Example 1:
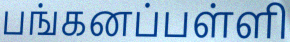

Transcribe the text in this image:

பங்கனப்பள்ளி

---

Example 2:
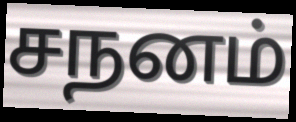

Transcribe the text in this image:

சநனம்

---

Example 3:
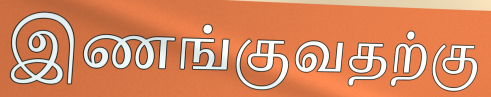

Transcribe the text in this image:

இணங்குவதற்கு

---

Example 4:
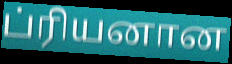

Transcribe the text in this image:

ப்ரியனான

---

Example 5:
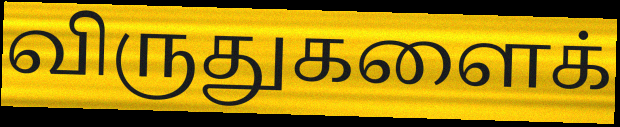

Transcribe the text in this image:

விருதுகளைக்